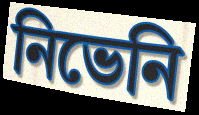
নিভেনি